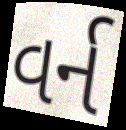
વર્ન